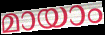
മായാം